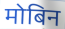
मोबिन